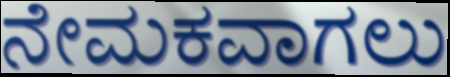
ನೇಮಕವಾಗಲು